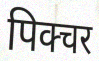
पिक्चर